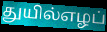
துயில்எழப்